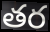
తర